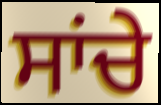
ਸਾਂਚੇ